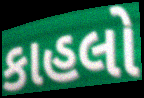
કાહલો